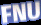
FNU